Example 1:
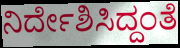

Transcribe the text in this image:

ನಿರ್ದೇಶಿಸಿದ್ದಂತೆ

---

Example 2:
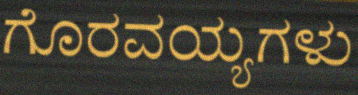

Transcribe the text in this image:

ಗೊರವಯ್ಯಗಳು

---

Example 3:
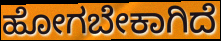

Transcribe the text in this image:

ಹೋಗಬೇಕಾಗಿದೆ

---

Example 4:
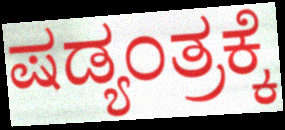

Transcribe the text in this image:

ಷಡ್ಯಂತ್ರಕ್ಕೆ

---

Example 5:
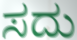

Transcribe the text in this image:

ಸದು